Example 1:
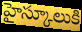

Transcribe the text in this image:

హైస్కూలుకి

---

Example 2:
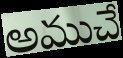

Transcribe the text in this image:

అముచే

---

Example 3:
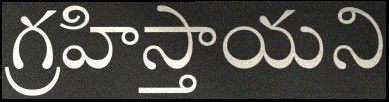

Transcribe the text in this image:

గ్రహిస్తాయని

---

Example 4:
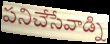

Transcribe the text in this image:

పనిచేసేవాడ్ని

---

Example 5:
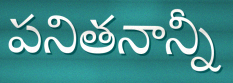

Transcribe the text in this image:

పనితనాన్నీ